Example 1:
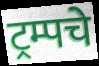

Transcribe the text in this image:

ट्रम्पचे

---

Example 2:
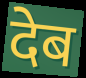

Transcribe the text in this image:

देब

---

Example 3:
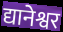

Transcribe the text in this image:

द्यानेश्वर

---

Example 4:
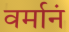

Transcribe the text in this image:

वर्मानं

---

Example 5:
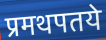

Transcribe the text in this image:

प्रमथपतये